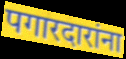
पगारदारांना